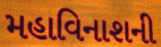
મહાવિનાશની